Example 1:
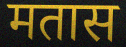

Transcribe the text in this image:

मतास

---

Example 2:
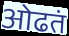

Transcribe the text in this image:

ओढतं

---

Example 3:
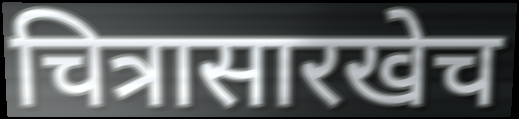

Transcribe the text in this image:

चित्रासारखेच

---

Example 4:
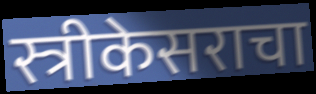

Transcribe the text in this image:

स्त्रीकेसराचा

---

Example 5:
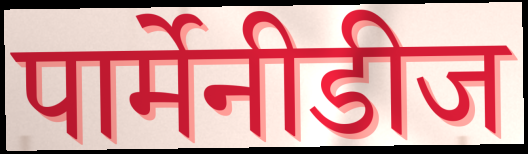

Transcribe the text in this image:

पार्मेनीडीज